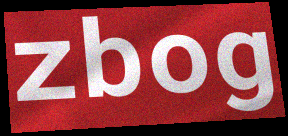
zbog